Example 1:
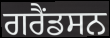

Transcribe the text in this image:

ਗਰੈਂਡਸਨ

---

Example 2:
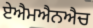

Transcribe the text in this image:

ਏਐਮਐਨਐਚ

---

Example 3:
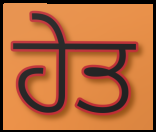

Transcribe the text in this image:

ਹੇਤ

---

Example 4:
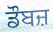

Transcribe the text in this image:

ਡੌਬਜ਼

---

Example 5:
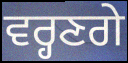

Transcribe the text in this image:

ਵਰ੍ਹਣਗੇ